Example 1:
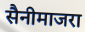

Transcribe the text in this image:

सैनीमाजरा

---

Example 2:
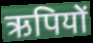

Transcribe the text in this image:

ऋपियों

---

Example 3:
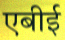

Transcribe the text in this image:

एबीई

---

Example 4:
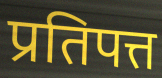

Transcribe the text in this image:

प्रतिपत्त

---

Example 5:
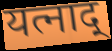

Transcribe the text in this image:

यत्नाद्